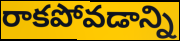
రాకపోవడాన్ని